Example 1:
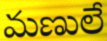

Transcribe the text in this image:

మణులే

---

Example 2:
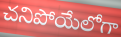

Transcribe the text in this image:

చనిపోయేలోగా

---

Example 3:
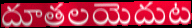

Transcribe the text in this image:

దూతలయెదుట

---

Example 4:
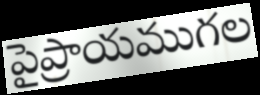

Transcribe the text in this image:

పైప్రాయముగల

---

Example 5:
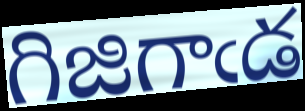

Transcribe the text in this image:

గిజిగాఁడ